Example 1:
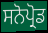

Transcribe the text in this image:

ਸਨੋਪ੍ਰੋਡ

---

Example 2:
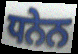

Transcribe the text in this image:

ਧਨੇਨ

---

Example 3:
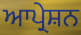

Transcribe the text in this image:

ਆਪ੍ਰੇਸ਼ਨ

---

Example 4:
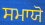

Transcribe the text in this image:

ਸਮਾਯੋ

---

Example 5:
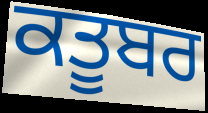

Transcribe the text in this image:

ਕਤੂਬਰ